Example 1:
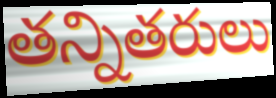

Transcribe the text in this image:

తన్నితరులు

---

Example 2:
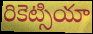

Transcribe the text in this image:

రికెట్సియా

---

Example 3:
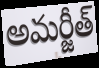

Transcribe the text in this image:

అమర్జీత్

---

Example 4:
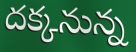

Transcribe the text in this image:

దక్కనున్న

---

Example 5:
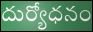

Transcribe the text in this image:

దుర్యోధనం